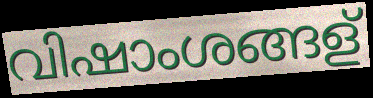
വിഷാംശങ്ങള്